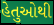
હેતુઓથી